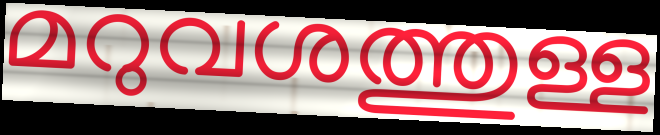
മറുവശത്തുള്ള